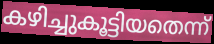
കഴിച്ചുകൂട്ടിയതെന്ന്